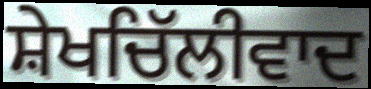
ਸ਼ੇਖਚਿੱਲੀਵਾਦ